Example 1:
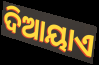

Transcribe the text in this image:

ଦିଆୟାଏ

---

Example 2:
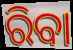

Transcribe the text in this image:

ରିବା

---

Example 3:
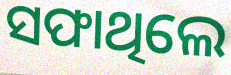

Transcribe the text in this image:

ସଫାଥିଲେ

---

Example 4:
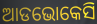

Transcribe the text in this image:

ଆଡଭୋକେସି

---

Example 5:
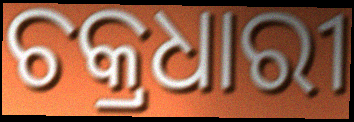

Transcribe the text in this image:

ଚକ୍ରଧାରୀ